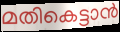
മതികെട്ടാൻ